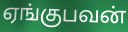
ஏங்குபவன்